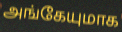
அங்கேயுமாக